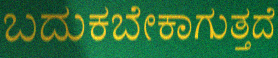
ಬದುಕಬೇಕಾಗುತ್ತದೆ